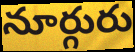
నూర్గురు